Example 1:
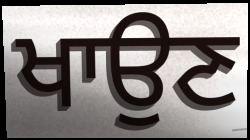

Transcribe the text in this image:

ਖਾਉਣ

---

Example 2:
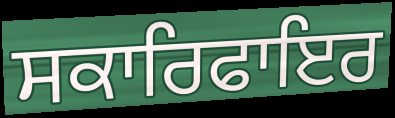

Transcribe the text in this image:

ਸਕਾਰਿਫਾਇਰ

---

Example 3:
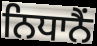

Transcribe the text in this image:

ਨਿਧਾਨੈਂ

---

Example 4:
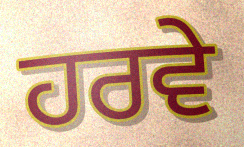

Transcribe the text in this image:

ਹਰਵੇ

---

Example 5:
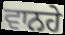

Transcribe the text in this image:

ਵਾਨਹੇ